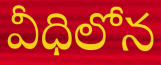
వీధిలోన